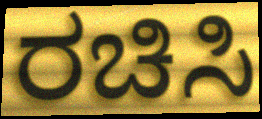
ರಚಿಸಿ